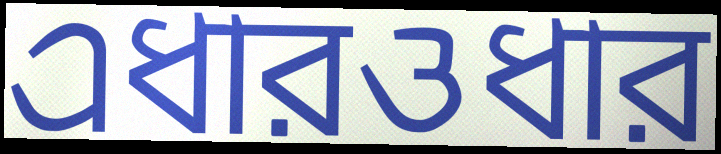
এধারওধার